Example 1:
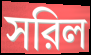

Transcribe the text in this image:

সরিল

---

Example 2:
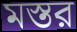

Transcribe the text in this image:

মস্তর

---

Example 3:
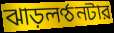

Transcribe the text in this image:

ঝাড়লণ্ঠনটার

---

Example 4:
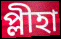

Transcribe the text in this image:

প্লীহা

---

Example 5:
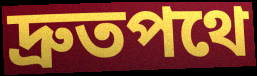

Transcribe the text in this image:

দ্রুতপথে